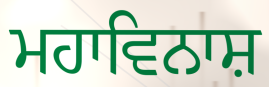
ਮਹਾਵਿਨਾਸ਼